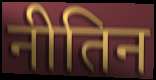
नीतिन